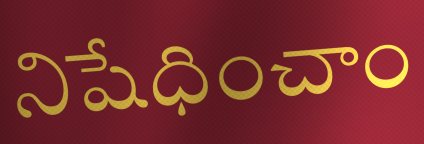
నిషేధించాం